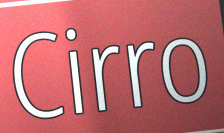
Cirro